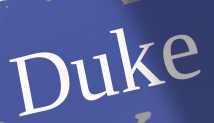
Duke